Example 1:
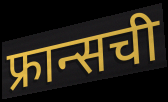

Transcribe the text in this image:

फ्रान्सची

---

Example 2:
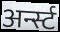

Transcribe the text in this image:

अर्न्स्ट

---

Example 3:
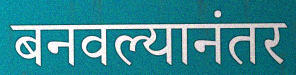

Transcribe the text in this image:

बनवल्यानंतर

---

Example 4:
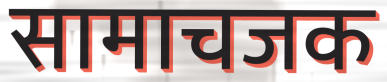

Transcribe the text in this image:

सामाचजक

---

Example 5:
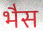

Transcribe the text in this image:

भैस